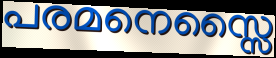
പരമനെസ്സൈ